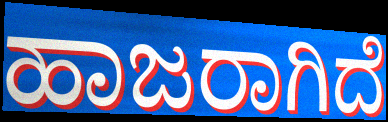
ಹಾಜರಾಗಿದೆ